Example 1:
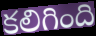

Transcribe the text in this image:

కలిగింది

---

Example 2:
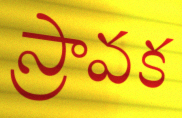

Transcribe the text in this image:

స్రావక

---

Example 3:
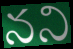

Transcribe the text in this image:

నని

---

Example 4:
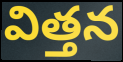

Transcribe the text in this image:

విత్తన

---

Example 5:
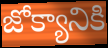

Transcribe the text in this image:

జోక్యానికి